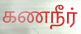
கணநீர்